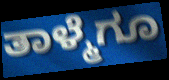
ತಾಳ್ಮೆಗೂ